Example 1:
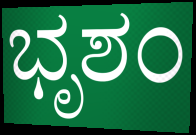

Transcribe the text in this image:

ಭೃಶಂ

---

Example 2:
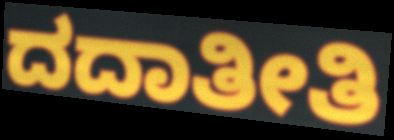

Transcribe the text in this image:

ದದಾತೀತಿ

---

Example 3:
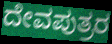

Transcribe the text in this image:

ದೇವಪುತ್ರರ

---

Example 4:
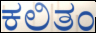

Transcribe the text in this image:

ಕಲಿತಂ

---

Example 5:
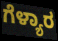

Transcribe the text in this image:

ಗೆಳ್ಯಾರ